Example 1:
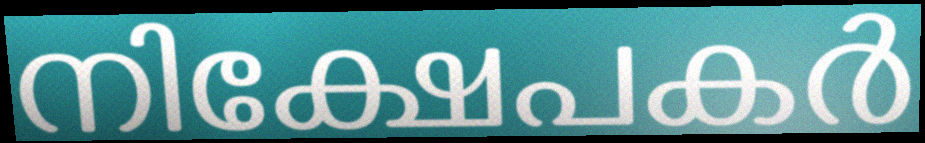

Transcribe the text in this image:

നിക്ഷേപകർ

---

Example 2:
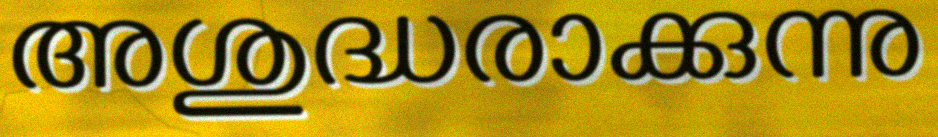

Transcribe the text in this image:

അശുദ്ധരാക്കുന്നു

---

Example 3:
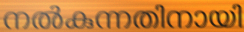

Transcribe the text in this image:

നൽകുന്നതിനായി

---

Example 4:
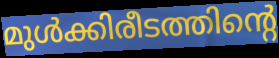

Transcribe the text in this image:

മുൾക്കിരീടത്തിന്റെ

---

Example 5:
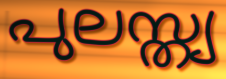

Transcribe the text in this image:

പുലസ്ത്യ